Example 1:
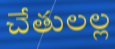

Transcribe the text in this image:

చేతులల్ల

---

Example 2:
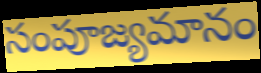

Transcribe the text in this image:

సంపూజ్యమానం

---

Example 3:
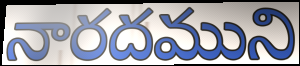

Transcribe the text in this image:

నారదముని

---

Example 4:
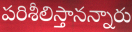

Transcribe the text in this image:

పరిశీలిస్తానన్నారు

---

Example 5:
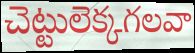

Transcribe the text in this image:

చెట్టులెక్కగలవా